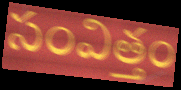
సంవిత్తం